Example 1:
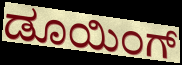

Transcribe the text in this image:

ಡೂಯಿಂಗ್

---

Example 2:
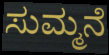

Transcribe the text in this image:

ಸುಮ್ಮನೆ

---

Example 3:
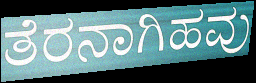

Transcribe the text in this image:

ತೆರನಾಗಿಹವು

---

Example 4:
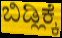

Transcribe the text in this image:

ಬಿಡ್ಲಿಕ್ಕೆ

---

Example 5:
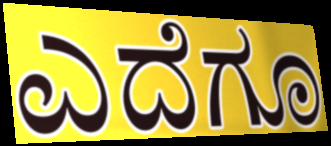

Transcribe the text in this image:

ಎದೆಗೂ